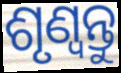
ଶୃଣ୍ଵନ୍ତୁ